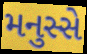
મનુસ્સે